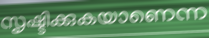
സൃഷ്ടിക്കുകയാണെന്ന